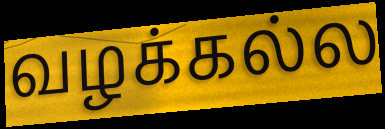
வழக்கல்ல